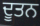
ਦੂਤਨ